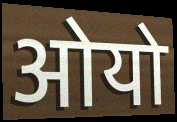
ओयो